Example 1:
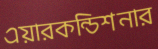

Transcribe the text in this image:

এয়ারকন্ডিশনার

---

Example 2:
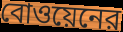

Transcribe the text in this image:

বোওয়েনের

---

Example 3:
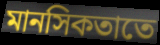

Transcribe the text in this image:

মানসিকতাতে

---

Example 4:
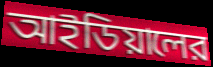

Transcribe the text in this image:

আইডিয়ালের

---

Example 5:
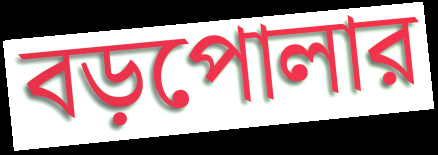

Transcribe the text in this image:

বড়পোলার